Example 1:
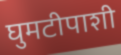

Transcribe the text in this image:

घुमटीपाशी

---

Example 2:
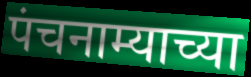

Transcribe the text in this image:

पंचनाम्याच्या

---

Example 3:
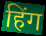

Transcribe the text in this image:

हिंग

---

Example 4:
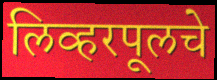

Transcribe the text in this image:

लिव्हरपूलचे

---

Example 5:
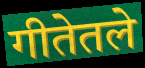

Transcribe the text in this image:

गीतेतले